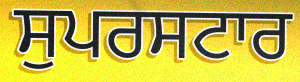
ਸੁਪਰਸਟਾਰ